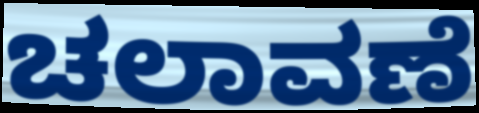
ಚಲಾವಣೆ